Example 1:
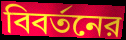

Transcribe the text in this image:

বিবর্তনের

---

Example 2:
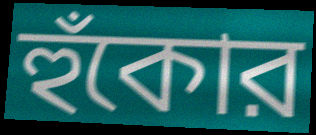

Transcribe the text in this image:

হুঁকোর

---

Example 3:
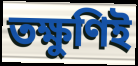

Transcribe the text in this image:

তক্ষুণিই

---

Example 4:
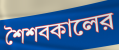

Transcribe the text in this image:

শৈশবকালের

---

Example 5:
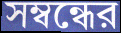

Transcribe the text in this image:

সম্বন্ধের